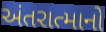
અંતરાત્માનો